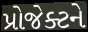
પ્રોજેક્ટને